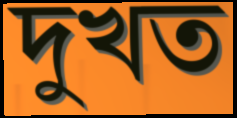
দুখত